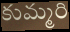
కుమ్మరి